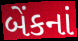
બેંકનાં